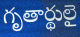
గృతార్థులై